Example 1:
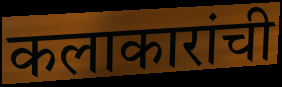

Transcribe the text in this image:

कलाकारांची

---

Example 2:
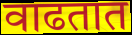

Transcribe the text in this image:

वाढतात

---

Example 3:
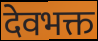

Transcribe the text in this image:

देवभक्त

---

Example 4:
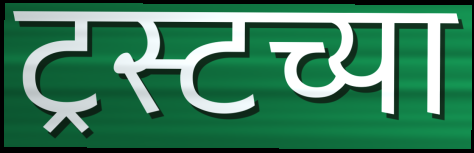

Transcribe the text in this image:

ट्रस्टच्या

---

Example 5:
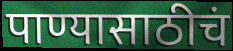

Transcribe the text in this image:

पाण्यासाठीचं